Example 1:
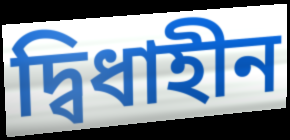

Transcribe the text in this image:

দ্বিধাহীন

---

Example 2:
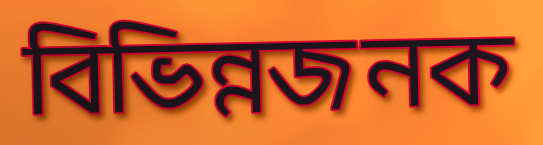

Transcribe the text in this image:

বিভিন্নজনক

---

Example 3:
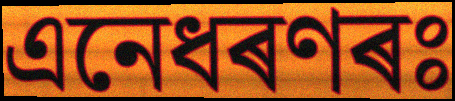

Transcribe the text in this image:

এনেধৰণৰঃ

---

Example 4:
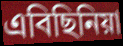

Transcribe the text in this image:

এবিছিনিয়া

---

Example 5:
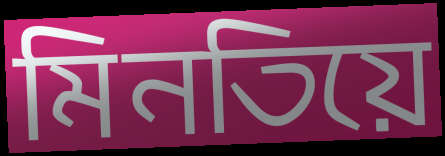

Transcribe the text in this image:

মিনতিয়ে